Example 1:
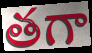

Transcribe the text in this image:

తగా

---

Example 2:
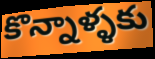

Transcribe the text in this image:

కొన్నాళ్ళకు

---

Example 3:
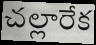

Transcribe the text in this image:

చల్లారేక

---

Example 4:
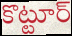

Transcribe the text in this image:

కొట్టూర్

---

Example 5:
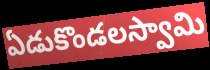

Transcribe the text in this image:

ఏడుకొండలస్వామి